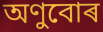
অণুবোৰ